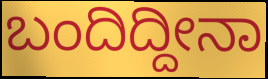
ಬಂದಿದ್ದೀನಾ